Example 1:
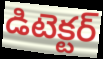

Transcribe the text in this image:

డిటెక్టర్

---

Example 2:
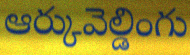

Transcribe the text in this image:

ఆర్కువెల్డింగు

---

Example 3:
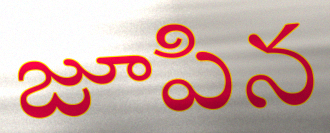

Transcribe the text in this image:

జూపిన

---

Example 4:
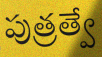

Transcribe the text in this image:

పుత్రత్వే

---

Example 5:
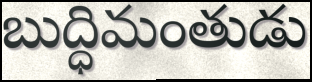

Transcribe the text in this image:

బుద్ధిమంతుడు